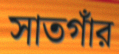
সাতগাঁর